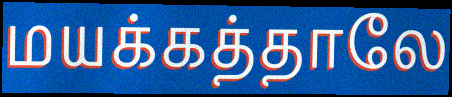
மயக்கத்தாலே